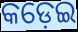
କଡ଼େଇ